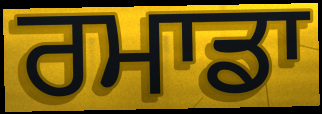
ਰਮਾਡਾ